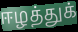
ஈழத்துக்